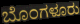
ಬೊಂಗಳೂರು